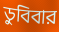
ডুবিবার